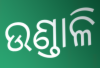
ଉଣ୍ଡାଳି